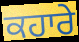
ਕਹਾਰੇ